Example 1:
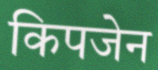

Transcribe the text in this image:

किपजेन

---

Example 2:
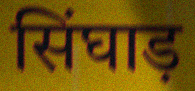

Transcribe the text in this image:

सिंघाड़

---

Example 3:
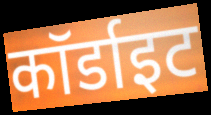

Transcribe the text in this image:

कॉर्डाइट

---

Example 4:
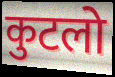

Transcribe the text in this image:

कुटलो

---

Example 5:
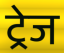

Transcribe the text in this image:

ट्रेज